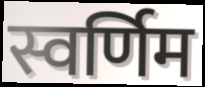
स्‍वर्णिम